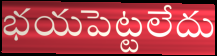
భయపెట్టలేదు